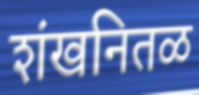
शंखनितळ